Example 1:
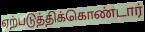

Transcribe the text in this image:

ஏற்படுத்திக்கொண்டார்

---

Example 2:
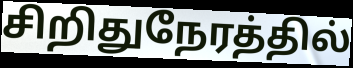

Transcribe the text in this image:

சிறிதுநேரத்தில்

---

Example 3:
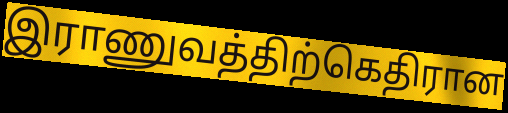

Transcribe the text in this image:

இராணுவத்திற்கெதிரான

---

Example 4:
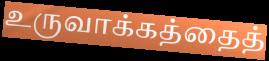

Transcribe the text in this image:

உருவாக்கத்தைத்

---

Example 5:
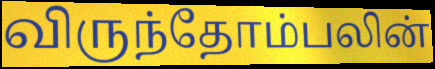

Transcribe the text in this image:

விருந்தோம்பலின்